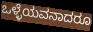
ಒಳ್ಳೆಯವನಾದರೂ